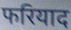
फरियाद